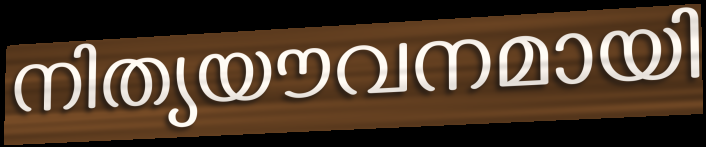
നിത്യയൗവനമായി